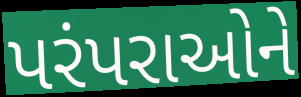
પરંપરાઓને